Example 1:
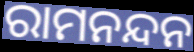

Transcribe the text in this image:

ରାମନନ୍ଦନ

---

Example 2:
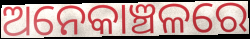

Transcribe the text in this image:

ଅନେକାଞ୍ଚଳରେ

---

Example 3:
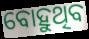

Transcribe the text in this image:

ବୋହୁଥିବ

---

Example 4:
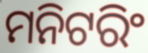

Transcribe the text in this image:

ମନିଟରିଂ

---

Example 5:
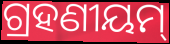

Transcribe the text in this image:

ଗ୍ରହଣୀୟମ୍